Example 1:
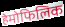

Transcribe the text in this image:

हेमोफिलिक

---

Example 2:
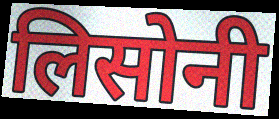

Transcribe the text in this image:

लिसोनी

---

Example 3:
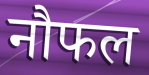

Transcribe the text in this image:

नौफल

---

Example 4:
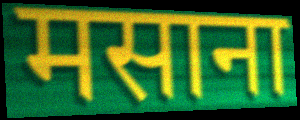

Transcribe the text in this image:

मसाना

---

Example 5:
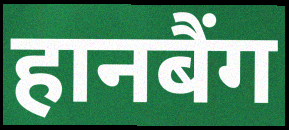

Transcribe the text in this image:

हानबैंग